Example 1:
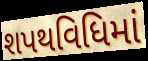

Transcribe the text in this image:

શપથવિધિમાં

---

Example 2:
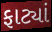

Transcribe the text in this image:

ફાટ્યાં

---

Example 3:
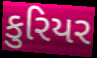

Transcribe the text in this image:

કુરિયર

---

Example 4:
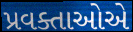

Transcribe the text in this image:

પ્રવક્તાઓએ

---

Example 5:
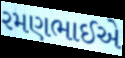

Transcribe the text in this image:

રમણભાઈએ